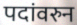
पदांवरुन